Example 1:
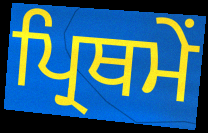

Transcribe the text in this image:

ਪ੍ਰਿਥਮੇਂ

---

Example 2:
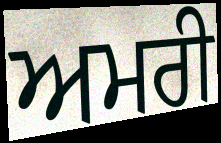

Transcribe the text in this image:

ਅਮਰੀ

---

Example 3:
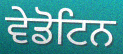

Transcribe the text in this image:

ਵੇਡੋਟਿਨ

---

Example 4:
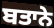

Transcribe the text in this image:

ਬਤਾਨੇ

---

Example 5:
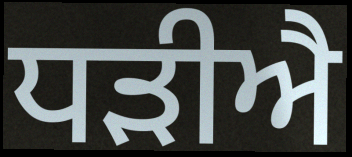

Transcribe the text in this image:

ਧੜੀਐ